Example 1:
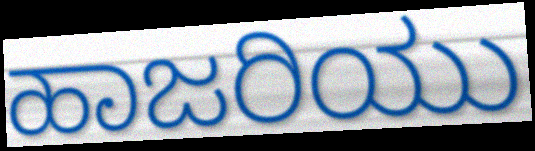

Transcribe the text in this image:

ಹಾಜರಿಯು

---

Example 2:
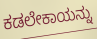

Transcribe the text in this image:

ಕಡಲೇಕಾಯನ್ನು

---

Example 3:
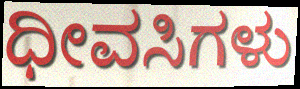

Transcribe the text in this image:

ಧೀವಸಿಗಳು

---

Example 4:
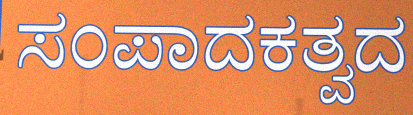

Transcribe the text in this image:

ಸಂಪಾದಕತ್ವದ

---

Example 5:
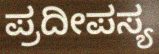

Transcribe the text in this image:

ಪ್ರದೀಪಸ್ಯ